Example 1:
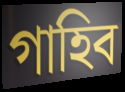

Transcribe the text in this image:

গাহিব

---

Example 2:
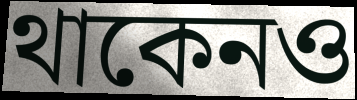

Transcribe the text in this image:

থাকেনও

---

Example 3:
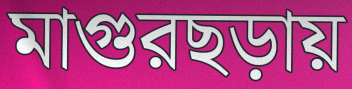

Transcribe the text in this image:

মাগুরছড়ায়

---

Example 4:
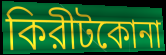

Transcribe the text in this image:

কিরীটকোনা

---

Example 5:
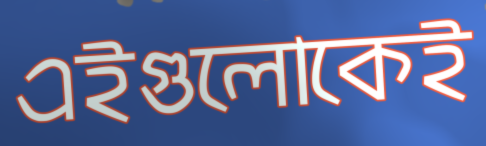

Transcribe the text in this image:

এইগুলোকেই